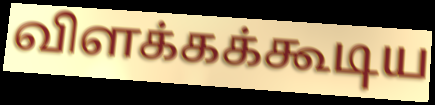
விளக்கக்கூடிய